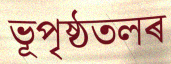
ভূপৃষ্ঠতলৰ